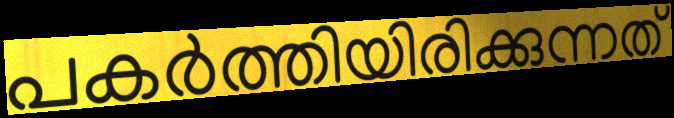
പകർത്തിയിരിക്കുന്നത്